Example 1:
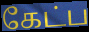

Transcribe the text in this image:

கேட்ப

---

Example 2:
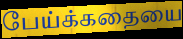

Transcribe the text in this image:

பேய்க்கதையை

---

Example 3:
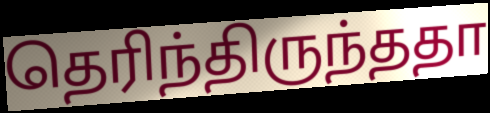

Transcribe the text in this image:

தெரிந்திருந்ததா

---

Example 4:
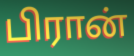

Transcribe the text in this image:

பிரான்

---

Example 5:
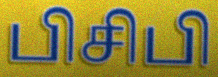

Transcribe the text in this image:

பிசிபி